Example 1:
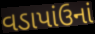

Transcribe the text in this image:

વડાપાંઉનાં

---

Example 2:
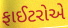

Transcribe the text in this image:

ફાઈટરોએ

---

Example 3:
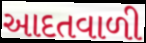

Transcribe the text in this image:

આદતવાળી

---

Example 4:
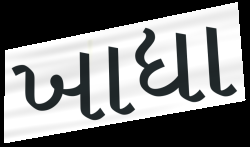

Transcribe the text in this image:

ખાદ્યા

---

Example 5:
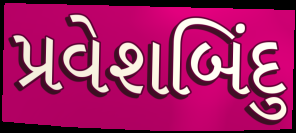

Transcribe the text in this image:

પ્રવેશબિંદુ